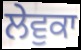
ਲੇਵੁਕਾ